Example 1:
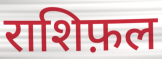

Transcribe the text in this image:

राशिफ़ल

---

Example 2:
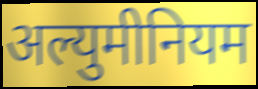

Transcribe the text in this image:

अल्युमीनियम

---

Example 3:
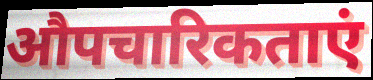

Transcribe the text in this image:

औपचारिकताएं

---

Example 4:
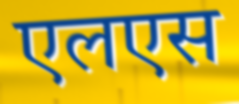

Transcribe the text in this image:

एलएस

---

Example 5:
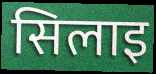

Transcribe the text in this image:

सिलाइ